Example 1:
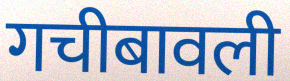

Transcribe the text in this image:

गचीबावली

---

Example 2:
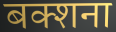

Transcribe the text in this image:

बक्शना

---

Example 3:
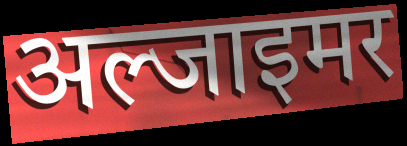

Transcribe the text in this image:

अल्जाइमर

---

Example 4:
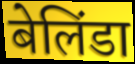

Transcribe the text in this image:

बेलिंडा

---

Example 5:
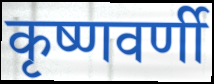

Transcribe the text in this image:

कृष्णवर्णी